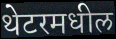
थेटरमधील